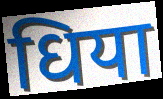
धिया